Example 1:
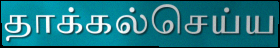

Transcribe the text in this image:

தாக்கல்செய்ய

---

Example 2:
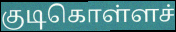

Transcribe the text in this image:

குடிகொள்ளச்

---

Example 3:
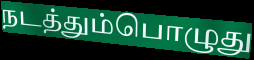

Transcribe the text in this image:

நடத்தும்பொழுது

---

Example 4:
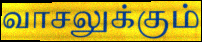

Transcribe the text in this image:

வாசலுக்கும்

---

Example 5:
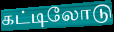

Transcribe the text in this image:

கட்டிலோடு